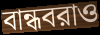
বান্ধবরাও